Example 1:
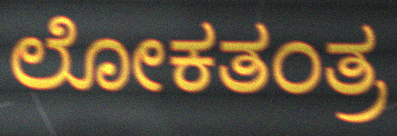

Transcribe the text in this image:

ಲೋಕತಂತ್ರ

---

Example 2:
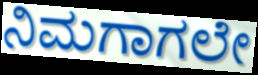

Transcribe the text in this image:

ನಿಮಗಾಗಲೇ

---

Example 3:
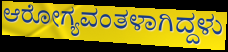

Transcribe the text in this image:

ಆರೋಗ್ಯವಂತಳಾಗಿದ್ದಳು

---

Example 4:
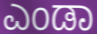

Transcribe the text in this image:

ಎಂಡಾ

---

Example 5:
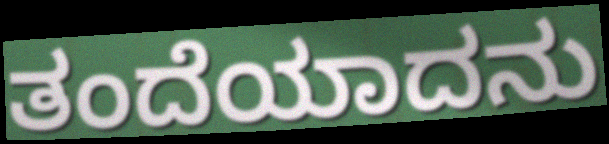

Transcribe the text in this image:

ತಂದೆಯಾದನು